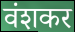
वंशकर